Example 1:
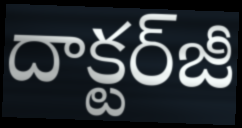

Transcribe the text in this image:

దాక్టర్‌జీ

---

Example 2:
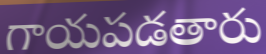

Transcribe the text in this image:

గాయపడతారు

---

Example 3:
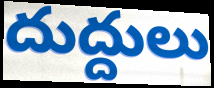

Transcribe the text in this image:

దుద్దులు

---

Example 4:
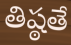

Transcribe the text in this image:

తిష్ఠతే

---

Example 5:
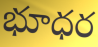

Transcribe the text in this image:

భూధర